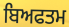
ਬਿਅਫਤਮ